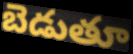
బెడుతూ